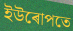
ইউৰোপতে